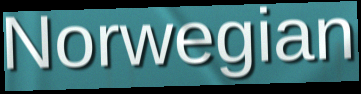
Norwegian